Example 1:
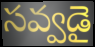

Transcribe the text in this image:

సవ్వడై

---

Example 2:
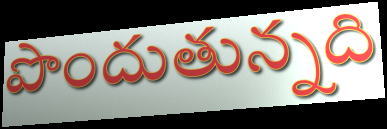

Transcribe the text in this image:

పొందుతున్నది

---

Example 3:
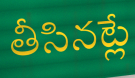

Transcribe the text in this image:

తీసినట్లే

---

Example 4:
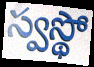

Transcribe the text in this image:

స్వస్థో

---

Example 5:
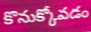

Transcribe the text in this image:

కొనుక్కోవడం